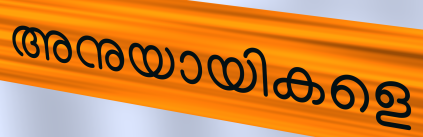
അനുയായികളെ